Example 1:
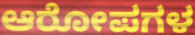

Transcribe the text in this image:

ಆರೋಪಗಳ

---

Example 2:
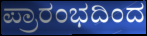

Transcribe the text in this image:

ಪ್ರಾರಂಭದಿಂದ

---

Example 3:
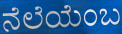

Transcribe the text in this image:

ನೆಲೆಯೆಂಬ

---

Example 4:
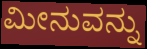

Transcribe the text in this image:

ಮೀನುವನ್ನು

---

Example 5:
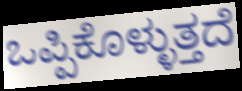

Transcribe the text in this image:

ಒಪ್ಪಿಕೊಳ್ಳುತ್ತದೆ